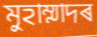
মুহাম্মাদৰ